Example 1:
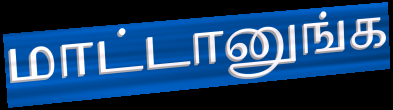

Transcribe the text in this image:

மாட்டானுங்க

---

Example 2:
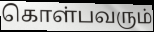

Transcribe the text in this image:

கொள்பவரும்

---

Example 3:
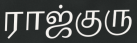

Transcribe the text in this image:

ராஜ்குரு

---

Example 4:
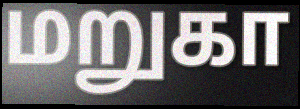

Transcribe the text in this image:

மறுகா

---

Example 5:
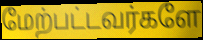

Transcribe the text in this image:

மேற்பட்டவர்களே